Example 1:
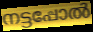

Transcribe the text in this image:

നട്ടപ്പോൽ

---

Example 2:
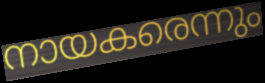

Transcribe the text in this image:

നായകരെന്നും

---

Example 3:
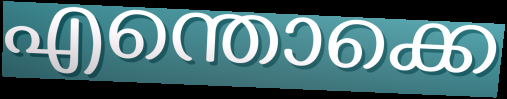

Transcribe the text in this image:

എന്തൊക്കെ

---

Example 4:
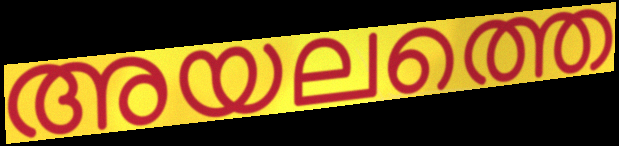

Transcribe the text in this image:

അയലത്തെ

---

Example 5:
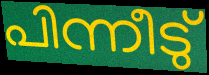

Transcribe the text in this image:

പിന്നീടു്